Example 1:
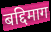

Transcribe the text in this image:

बद्दिमाग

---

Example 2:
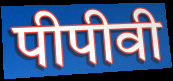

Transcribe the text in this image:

पीपीवी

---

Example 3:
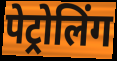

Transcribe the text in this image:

पेट्रोलिंग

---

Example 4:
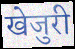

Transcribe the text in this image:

खेजुरी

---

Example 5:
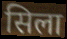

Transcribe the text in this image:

सिला